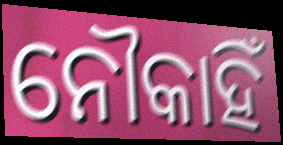
ନୌକାହିଁ